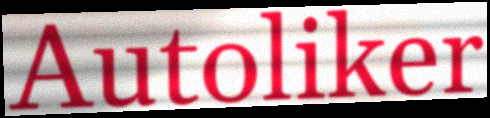
Autoliker